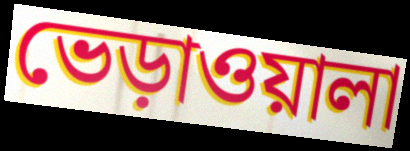
ভেড়াওয়ালা